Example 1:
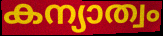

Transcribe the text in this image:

കന്യാത്വം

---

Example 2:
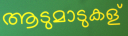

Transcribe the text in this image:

ആടുമാടുകള്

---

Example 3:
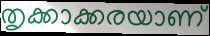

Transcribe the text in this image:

തൃക്കാക്കരയാണ്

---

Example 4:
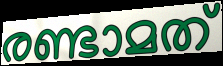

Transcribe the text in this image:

രണ്ടാമത്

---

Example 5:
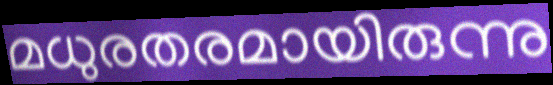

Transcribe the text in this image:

മധുരതരമായിരുന്നു